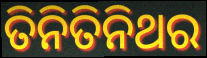
ତିନିତିନିଥର